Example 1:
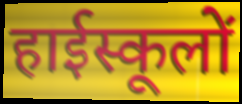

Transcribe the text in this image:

हाईस्कूलों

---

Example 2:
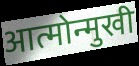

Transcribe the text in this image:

आत्मोन्मुखी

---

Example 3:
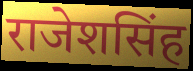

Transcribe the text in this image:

राजेशसिंह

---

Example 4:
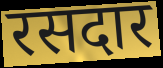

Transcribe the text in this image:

रसदार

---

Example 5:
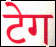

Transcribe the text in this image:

टेग